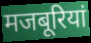
मजबूरियां